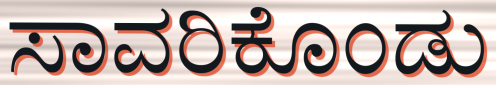
ಸಾವರಿಕೊಂಡು